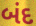
બંદ